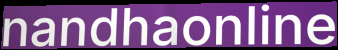
nandhaonline